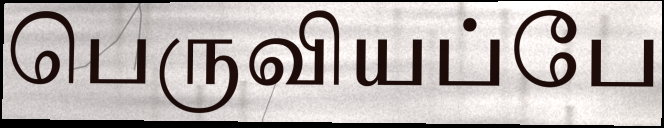
பெருவியப்பே